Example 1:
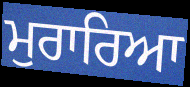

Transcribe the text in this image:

ਮੁਰਾਰਿਆ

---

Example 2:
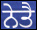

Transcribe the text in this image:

ਨੇਤੈ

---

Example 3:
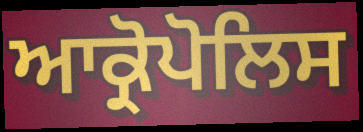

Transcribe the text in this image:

ਆਕ੍ਰੋਪੋਲਿਸ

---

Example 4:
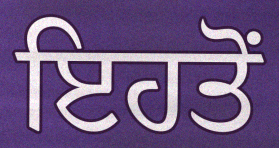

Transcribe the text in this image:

ਇਹਤੋਂ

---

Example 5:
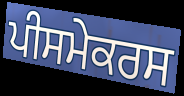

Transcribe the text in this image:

ਪੀਸਮੇਕਰਸ